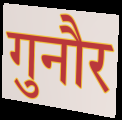
गुनौर